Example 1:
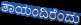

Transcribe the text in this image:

ತಾಯಂದಿರೆಂದು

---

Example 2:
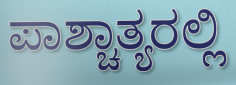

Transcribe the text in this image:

ಪಾಶ್ಚಾತ್ಯರಲ್ಲಿ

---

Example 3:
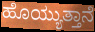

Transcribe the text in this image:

ಹೊಯ್ಯುತ್ತಾನೆ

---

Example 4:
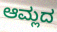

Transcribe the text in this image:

ಆಮ್ಲದ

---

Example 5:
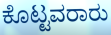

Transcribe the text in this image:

ಕೊಟ್ಟವರಾರು